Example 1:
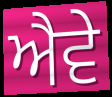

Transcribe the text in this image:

ਐਵੇ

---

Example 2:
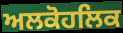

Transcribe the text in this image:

ਅਲਕੋਹਲਿਕ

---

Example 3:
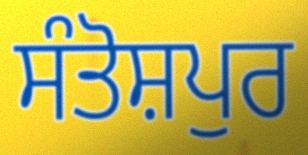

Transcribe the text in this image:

ਸੰਤੋਸ਼ਪੁਰ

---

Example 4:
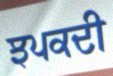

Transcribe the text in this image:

ਝਪਕਦੀ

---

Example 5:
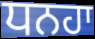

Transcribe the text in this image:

ਧਨਹਾ